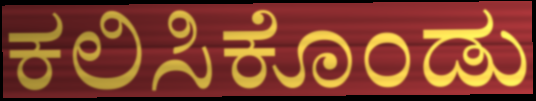
ಕಲಿಸಿಕೊಂಡು